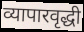
व्यापारवृद्धी